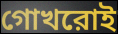
গোখরোই